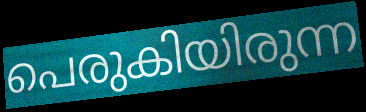
പെരുകിയിരുന്ന